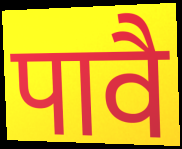
पावै